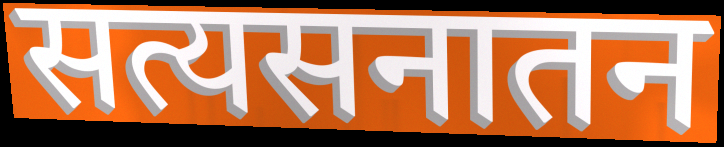
सत्यसनातन